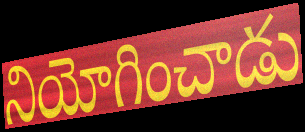
నియోగించాడు